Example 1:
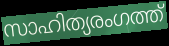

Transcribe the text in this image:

സാഹിത്യരംഗത്ത്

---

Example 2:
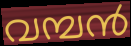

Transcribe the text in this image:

വമ്പൻ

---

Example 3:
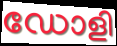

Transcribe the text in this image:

ഡോളി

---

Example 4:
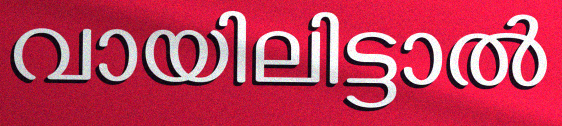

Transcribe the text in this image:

വായിലിട്ടാൽ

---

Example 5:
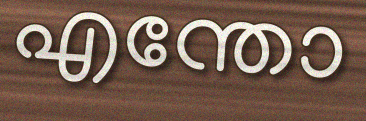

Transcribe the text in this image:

എന്തോ